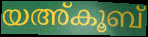
യഅ്കൂബ്